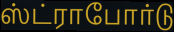
ஸ்ட்ராபோர்டு